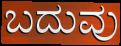
ಬದುವು